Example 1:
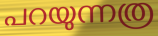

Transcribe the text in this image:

പറയുന്നത്ര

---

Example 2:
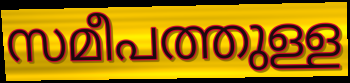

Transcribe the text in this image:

സമീപത്തുള്ള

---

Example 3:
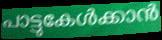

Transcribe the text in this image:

പാട്ടുകേൾക്കാൻ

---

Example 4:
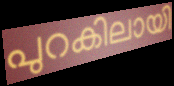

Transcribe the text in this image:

പുറകിലായി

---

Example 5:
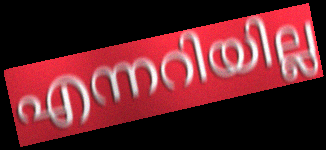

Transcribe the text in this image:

എന്നറിയില്ല